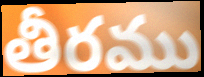
తీరము